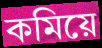
কমিয়ে